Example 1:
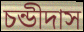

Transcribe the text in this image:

চন্ডীদাস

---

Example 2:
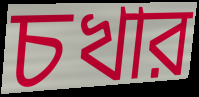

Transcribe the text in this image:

চখার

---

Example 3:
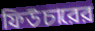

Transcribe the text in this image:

ফিউচারের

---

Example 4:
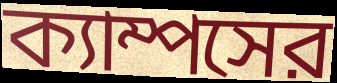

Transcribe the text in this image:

ক্যাম্পসের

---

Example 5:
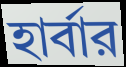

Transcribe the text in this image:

হার্বার